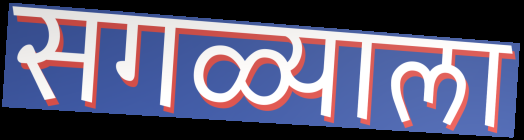
सगळ्याला